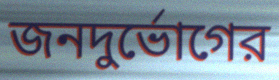
জনদুর্ভোগের